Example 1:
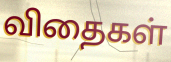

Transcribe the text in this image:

விதைகள்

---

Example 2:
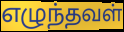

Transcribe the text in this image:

எழுந்தவள்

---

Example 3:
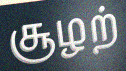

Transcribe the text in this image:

சூழற்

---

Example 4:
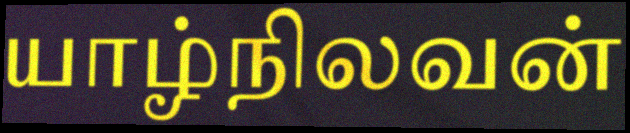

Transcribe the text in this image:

யாழ்நிலவன்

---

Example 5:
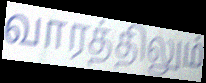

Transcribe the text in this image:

வாரத்திலும்